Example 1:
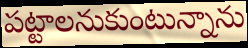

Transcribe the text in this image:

పట్టాలనుకుంటున్నాను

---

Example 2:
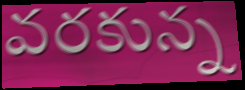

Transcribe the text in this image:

వరకున్న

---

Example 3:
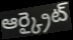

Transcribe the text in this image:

ఆర్క్రైట్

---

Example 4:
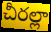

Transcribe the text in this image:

చీరల్లా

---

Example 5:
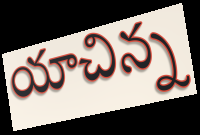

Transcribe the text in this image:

యాచిన్న